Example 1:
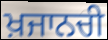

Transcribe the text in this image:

ਖ਼ਜਾਨਚੀ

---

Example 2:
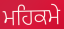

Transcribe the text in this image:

ਮਹਿਕਮੇ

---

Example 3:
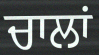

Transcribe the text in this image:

ਚਾਲਾਂ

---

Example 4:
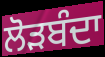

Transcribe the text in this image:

ਲੋੜਬੰਦਾ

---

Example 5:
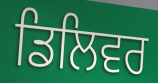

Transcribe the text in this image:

ਡਿਲਿਵਰ